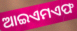
ଆଇଏମଏଫ